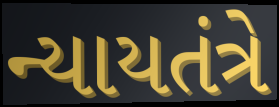
ન્યાયતંત્રે